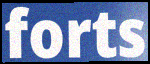
forts